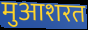
मुआशरत